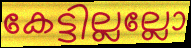
കേട്ടില്ലല്ലോ